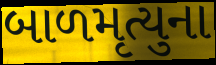
બાળમૃત્યુના